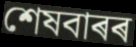
শেষবাৰৰ